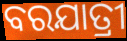
ବରଯାତ୍ରୀ